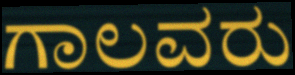
ಗಾಲವರು